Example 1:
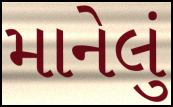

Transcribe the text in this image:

માનેલું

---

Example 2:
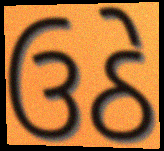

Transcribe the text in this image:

ઉઠે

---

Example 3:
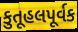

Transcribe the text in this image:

કુતૂહલપૂર્વક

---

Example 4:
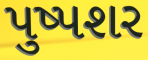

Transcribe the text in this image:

પુષ્પશર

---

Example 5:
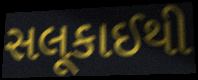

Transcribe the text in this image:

સલૂકાઈથી